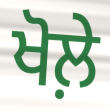
ਖੋਲ਼ੇ